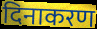
दिनाकरण